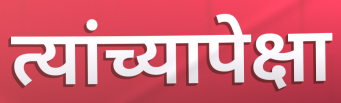
त्यांच्यापेक्षा